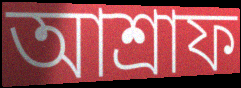
আশ্রাফ